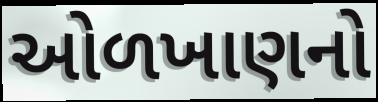
ઓળખાણનો